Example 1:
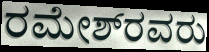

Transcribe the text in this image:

ರಮೇಶ್‌ರವರು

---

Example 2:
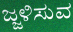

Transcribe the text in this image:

ಜ್ಜಳಿಸುವ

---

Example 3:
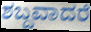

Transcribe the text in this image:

ಶಬ್ದವಾದರೆ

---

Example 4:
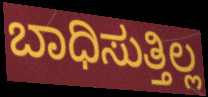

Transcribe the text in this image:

ಬಾಧಿಸುತ್ತಿಲ್ಲ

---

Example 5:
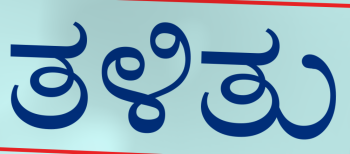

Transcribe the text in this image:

ತಳಿತು